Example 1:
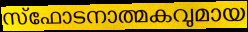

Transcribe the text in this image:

സ്ഫോടനാത്മകവുമായ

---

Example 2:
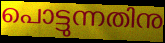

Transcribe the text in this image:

പൊട്ടുന്നതിനു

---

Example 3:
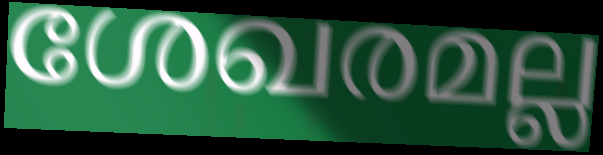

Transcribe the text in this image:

ശേഖരമല്ല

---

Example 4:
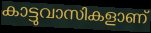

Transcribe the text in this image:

കാട്ടുവാസികളാണ്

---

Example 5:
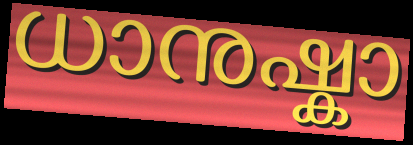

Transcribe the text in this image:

ധാനുഷ്കാ